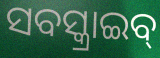
ସବସ୍କ୍ରାଇବ୍